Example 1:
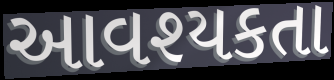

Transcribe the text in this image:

આવશ્યકતા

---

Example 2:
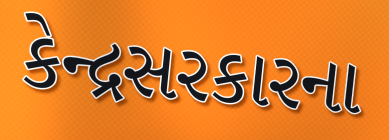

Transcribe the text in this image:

કેન્દ્રસરકારના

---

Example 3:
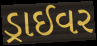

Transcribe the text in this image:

ડ્રાઈવર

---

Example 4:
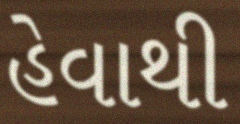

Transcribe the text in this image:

હેવાથી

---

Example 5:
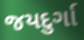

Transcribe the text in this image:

જયદુર્ગા